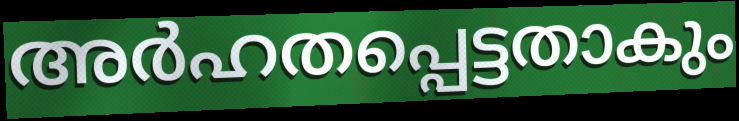
അർഹതപ്പെട്ടതാകും